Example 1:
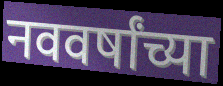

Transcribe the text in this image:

नववर्षांच्या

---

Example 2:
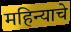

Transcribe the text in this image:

महिन्याचे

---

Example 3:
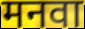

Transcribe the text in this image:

मनवा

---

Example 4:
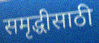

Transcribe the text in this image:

समृद्धीसाठी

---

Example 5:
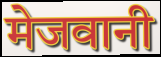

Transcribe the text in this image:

मेजवानी